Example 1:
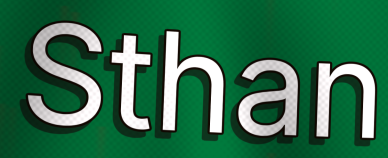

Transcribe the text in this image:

Sthan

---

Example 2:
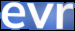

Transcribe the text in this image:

evr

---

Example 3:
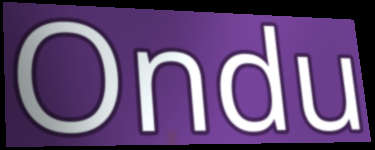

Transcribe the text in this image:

Ondu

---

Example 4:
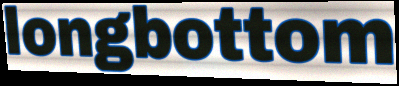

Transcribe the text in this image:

longbottom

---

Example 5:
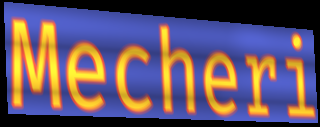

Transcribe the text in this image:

Mecheri